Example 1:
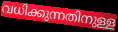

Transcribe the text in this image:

വധിക്കുന്നതിനുള്ള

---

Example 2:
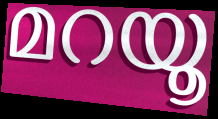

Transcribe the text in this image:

മറയൂ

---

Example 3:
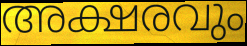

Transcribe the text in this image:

അക്ഷരവും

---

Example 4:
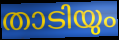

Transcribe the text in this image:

താടിയും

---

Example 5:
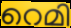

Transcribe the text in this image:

റെമി